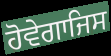
ਹੋਵੇਗਾਜਿਸ